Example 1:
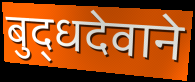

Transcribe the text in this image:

बुद्धदेवाने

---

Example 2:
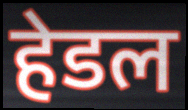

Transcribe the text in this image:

हेडल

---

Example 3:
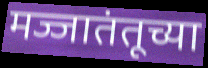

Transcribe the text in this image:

मज्जातंतूच्या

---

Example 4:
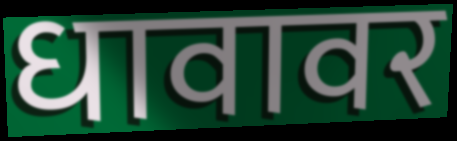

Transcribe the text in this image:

धावावर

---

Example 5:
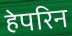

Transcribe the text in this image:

हेपरिन